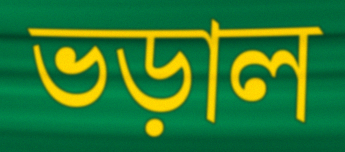
ভড়াল